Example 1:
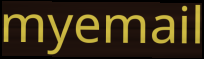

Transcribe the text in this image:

myemail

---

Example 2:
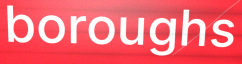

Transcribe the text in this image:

boroughs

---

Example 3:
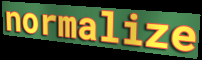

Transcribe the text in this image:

normalize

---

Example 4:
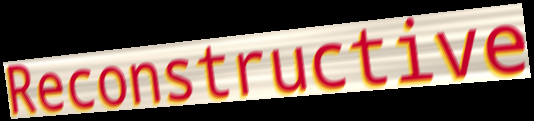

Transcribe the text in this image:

Reconstructive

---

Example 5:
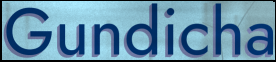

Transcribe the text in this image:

Gundicha